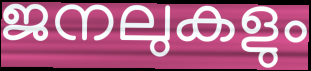
ജനലുകളും